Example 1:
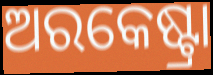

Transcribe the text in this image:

ଅରକେଷ୍ଟ୍ରା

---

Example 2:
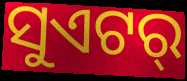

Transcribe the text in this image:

ସୁଏଟର୍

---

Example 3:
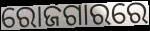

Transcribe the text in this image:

ରୋଜଗାରରେ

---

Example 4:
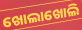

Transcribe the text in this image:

ଖୋଲାଖୋଲି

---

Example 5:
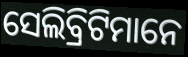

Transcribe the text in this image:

ସେଲିବ୍ରିଟିମାନେ